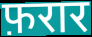
फ़रार